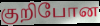
குறிபோன